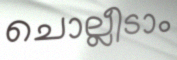
ചൊല്ലീടാം